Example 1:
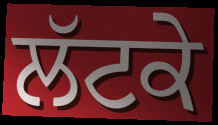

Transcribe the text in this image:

ਲੱਟਕੇ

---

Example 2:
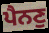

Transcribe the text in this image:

ਪੈਨਣੁ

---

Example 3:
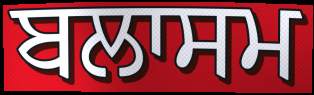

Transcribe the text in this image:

ਬਲਾਸਮ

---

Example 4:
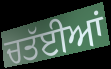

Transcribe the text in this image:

ਚਤੱਈਆਂ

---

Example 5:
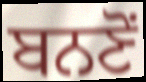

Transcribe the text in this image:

ਬਨਣੋਂ